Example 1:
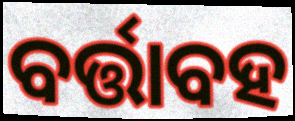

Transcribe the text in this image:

ବର୍ତ୍ତାବହ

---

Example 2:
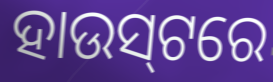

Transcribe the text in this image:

ହାଉସ୍‌ଟରେ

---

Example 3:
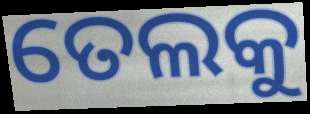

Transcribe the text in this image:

ତେଲକୁ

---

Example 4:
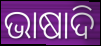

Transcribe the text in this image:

ଭାଷାଦି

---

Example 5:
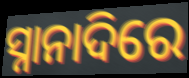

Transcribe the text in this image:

ସ୍ନାନାଦିରେ